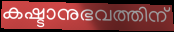
കഷ്ടാനുഭവത്തിന്